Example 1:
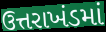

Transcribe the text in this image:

ઉત્તરાખંડમાં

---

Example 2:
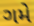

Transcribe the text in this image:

ગમે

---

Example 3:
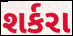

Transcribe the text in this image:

શર્કરા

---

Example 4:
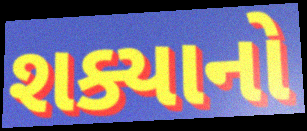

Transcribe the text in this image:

શક્યાનો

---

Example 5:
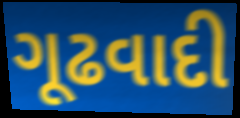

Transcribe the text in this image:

ગૂઢવાદી